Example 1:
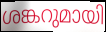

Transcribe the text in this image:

ശങ്കറുമായി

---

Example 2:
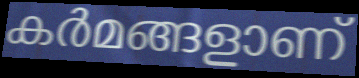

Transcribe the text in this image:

കർമങ്ങളാണ്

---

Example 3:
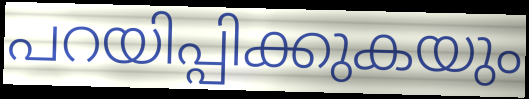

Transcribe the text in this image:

പറയിപ്പിക്കുകയും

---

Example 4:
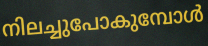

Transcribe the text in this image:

നിലച്ചുപോകുമ്പോൾ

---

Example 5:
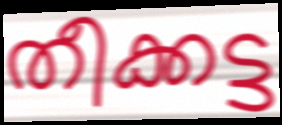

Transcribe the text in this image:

തീക്കട്ട